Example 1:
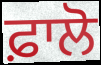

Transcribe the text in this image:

ਫ਼ਾਲੋ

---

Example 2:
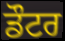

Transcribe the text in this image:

ਡੌਟਰ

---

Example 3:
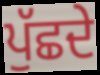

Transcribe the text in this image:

ਪੁੱਛਦੇ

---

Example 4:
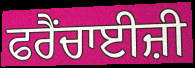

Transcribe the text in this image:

ਫਰੈਂਚਾਈਜ਼ੀ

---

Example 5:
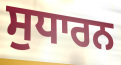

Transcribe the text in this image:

ਸੁਧਾਰਨ